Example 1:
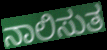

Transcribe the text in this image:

ನಾಲಿಸುತ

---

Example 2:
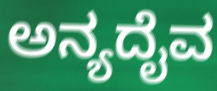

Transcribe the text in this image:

ಅನ್ಯದೈವ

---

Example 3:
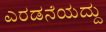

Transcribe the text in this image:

ಎರಡನೆಯದ್ದು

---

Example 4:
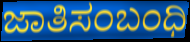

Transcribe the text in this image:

ಜಾತಿಸಂಬಂಧಿ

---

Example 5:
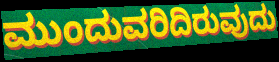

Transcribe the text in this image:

ಮುಂದುವರಿದಿರುವುದು